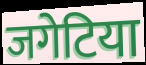
जगेटिया